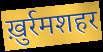
ख़ुर्रमशहर